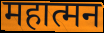
महात्मन